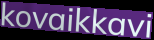
kovaikkavi